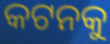
କଟନକୁ